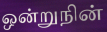
ஒன்றுநின்